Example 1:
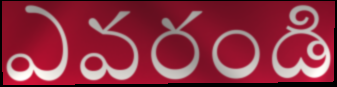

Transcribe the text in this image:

ఎవరండి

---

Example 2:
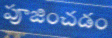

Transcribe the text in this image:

పూజించడం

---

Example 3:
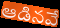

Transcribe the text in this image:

ఆడినవే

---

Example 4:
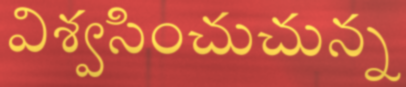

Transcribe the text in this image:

విశ్వసించుచున్న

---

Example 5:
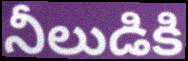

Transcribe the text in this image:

నీలుడికి